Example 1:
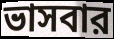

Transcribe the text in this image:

ভাসবার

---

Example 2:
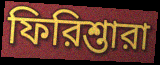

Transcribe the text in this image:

ফিরিশ্তারা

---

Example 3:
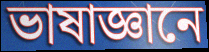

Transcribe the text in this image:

ভাষাজ্ঞানে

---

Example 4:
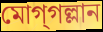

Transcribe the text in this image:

মোগ্‌গল্লান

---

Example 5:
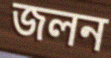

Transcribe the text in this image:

জলন